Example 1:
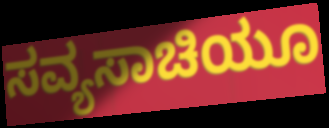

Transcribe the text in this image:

ಸವ್ಯಸಾಚಿಯೂ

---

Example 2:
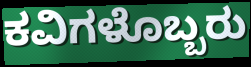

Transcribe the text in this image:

ಕವಿಗಳೊಬ್ಬರು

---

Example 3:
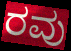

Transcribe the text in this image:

ರವು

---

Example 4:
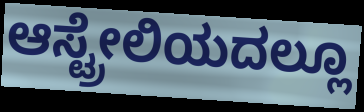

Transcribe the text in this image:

ಆಸ್ಟ್ರೇಲಿಯದಲ್ಲೂ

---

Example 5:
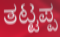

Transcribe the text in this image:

ತಟ್ಟಪ್ಪ